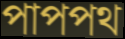
পাপপথ